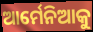
ଆର୍ମେନିଆକୁ